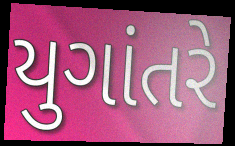
યુગાંતરે